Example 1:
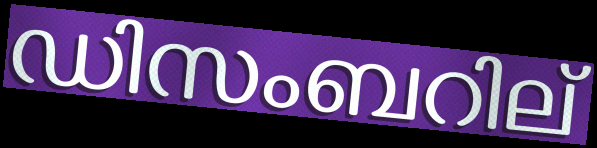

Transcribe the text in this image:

ഡിസംബറില്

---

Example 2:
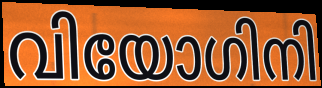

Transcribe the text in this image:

വിയോഗിനി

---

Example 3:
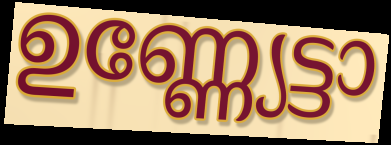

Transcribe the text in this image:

ഉണ്ണ്യേട്ടാ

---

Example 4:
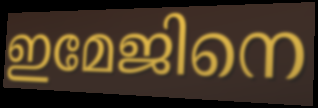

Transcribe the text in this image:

ഇമേജിനെ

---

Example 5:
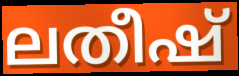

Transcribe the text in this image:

ലതീഷ്